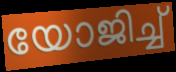
യോജിച്ച്